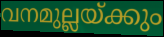
വനമുല്ലയ്ക്കും